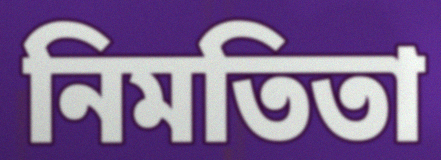
নিমতিতা